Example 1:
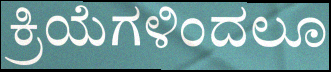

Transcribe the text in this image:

ಕ್ರಿಯೆಗಳಿಂದಲೂ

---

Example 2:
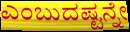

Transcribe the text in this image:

ಎಂಬುದಷ್ಟನ್ನೇ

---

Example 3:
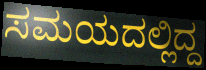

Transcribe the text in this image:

ಸಮಯದಲ್ಲಿದ್ದ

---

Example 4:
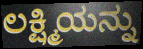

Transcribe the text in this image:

ಲಕ್ಷ್ಮಿಯನ್ನು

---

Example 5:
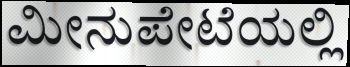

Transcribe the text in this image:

ಮೀನುಪೇಟೆಯಲ್ಲಿ